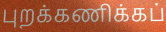
புறக்கணிக்கப்